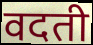
वदती